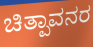
ಚಿತ್ಪಾವನರ